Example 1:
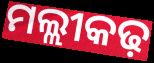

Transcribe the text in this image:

ମଲ୍ଲୀକଢ଼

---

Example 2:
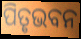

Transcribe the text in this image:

ପିତୃଭବନ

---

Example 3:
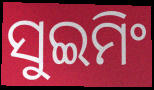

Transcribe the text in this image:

ସୁଇମିଂ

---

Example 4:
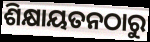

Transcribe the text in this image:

ଶିକ୍ଷାୟତନଠାରୁ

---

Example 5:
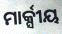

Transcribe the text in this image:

ମାର୍କ୍ସୀୟ